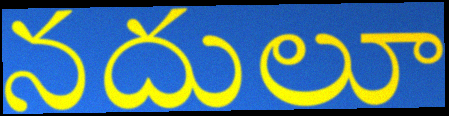
నదులూ